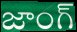
జాంగ్